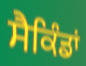
ਸੈਕਿੰਡਾਂ